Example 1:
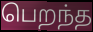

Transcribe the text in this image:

பெறந்த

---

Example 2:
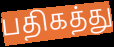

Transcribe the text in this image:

பதிகத்து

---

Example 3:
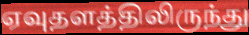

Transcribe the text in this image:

ஏவுதளத்திலிருந்து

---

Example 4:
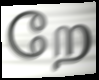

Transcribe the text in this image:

றே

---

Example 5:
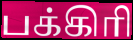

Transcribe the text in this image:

பக்கிரி